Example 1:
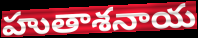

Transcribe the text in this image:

హుతాశనాయ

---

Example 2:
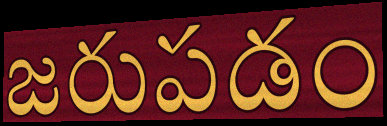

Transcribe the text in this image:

జరుపడం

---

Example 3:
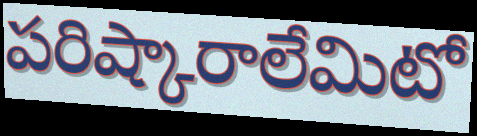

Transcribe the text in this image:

పరిష్కారాలేమిటో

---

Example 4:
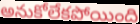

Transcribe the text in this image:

అనుకోలేకపోయింది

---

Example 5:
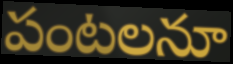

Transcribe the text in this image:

పంటలనూ